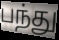
பந்து